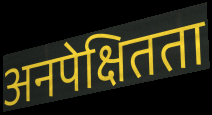
अनपेक्षितता